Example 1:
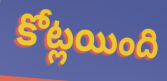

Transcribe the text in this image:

కోట్లయింది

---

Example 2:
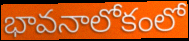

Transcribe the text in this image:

భావనాలోకంలో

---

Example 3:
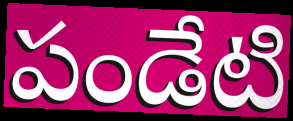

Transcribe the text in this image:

పండేటి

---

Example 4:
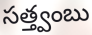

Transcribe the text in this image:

సత్త్వంబు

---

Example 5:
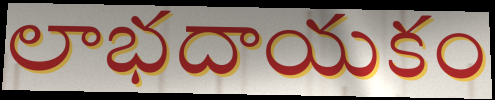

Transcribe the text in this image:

లాభదాయకం